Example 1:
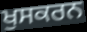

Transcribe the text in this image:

ਖੁਸਕਰਨ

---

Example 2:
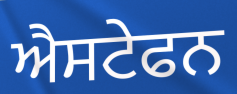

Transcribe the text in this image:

ਐਸਟੇਫਨ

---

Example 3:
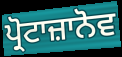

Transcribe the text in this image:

ਪ੍ਰੋਟਾਜ਼ਾਨੋਵ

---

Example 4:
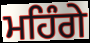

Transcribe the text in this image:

ਮਹਿੰਗੇ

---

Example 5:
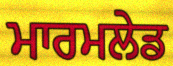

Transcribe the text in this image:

ਮਾਰਮਲੇਡ